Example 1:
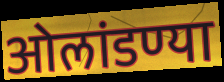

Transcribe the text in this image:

ओलांडण्या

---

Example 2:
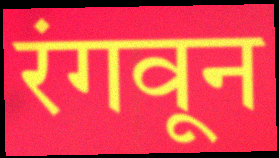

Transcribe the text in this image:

रंगवून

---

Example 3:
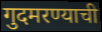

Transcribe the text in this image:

गुदमरण्याची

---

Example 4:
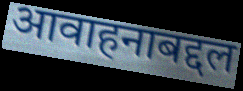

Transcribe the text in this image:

आवाहनाबद्दल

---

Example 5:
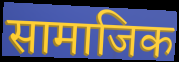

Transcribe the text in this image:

सामाजिक